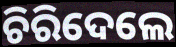
ଚିରିଦେଲେ